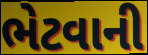
ભેટવાની